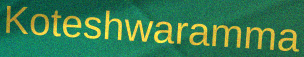
Koteshwaramma